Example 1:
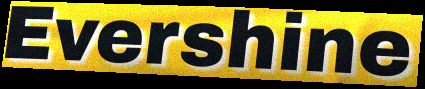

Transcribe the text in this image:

Evershine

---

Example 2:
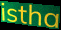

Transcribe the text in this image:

istha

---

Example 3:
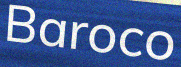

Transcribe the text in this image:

Baroco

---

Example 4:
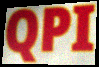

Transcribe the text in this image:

QPI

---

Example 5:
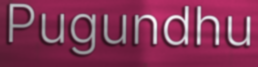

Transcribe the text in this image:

Pugundhu